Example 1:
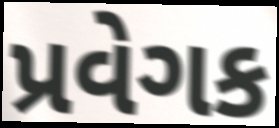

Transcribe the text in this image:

પ્રવેગક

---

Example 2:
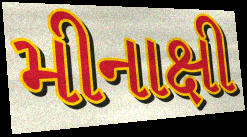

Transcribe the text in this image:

મીનાક્ષી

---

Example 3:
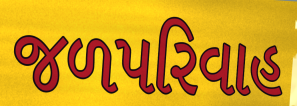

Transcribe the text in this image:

જળપરિવાહ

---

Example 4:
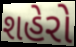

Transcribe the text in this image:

શહેરો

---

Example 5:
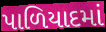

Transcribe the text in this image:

પાળિયાદમાં